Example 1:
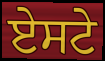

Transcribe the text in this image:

ਏਸਟੇ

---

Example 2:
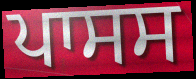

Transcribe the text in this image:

ਪਾਸਸ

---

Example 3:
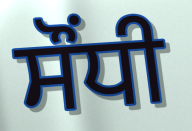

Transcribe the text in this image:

ਸੌਂਧੀ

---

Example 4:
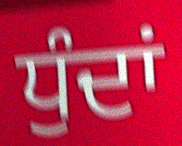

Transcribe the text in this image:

ਧੁੰਦਾਂ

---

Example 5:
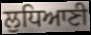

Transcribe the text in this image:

ਲੁਧਿਆਣੀ